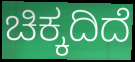
ಚಿಕ್ಕದಿದೆ